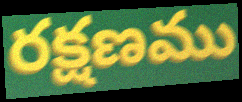
రక్షణము